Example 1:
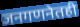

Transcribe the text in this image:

जनगणनेतही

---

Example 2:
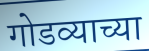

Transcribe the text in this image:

गोडव्याच्या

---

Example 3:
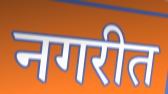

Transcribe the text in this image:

नगरीत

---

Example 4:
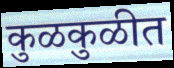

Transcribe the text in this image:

कुळकुळीत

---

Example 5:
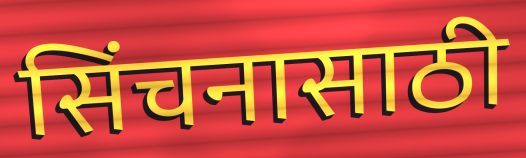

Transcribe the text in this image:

सिंचनासाठी